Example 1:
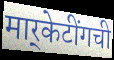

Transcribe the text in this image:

मार्केटींगची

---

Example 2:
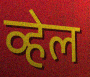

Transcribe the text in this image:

व्हेल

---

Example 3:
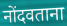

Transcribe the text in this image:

नोंदवताना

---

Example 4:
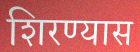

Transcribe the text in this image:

शिरण्यास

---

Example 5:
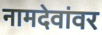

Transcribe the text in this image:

नामदेवांवर